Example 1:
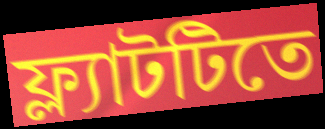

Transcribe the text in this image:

ফ্ল্যাটটিতে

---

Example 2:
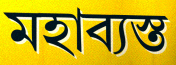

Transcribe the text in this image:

মহাব্যস্ত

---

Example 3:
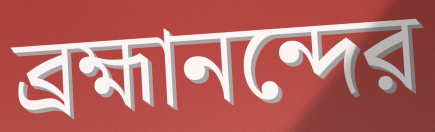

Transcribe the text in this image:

ব্রহ্মানন্দের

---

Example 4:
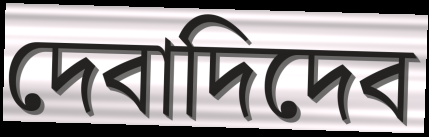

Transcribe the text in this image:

দেবাদিদেব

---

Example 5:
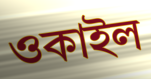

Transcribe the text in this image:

ওকাইল